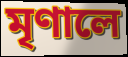
মৃণালে